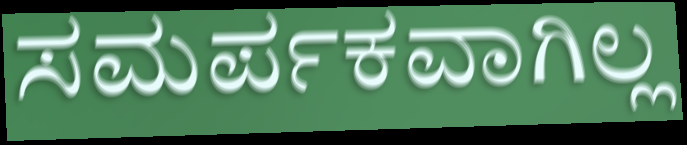
ಸಮರ್ಪಕವಾಗಿಲ್ಲ